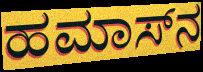
ಹಮಾಸ್‌ನ